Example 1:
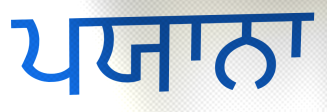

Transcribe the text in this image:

ਪਯਾਨਾ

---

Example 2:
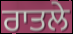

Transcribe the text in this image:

ਰਾਤਲੇ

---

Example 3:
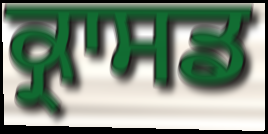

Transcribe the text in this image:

ਕ੍ਰਾਸਡ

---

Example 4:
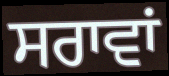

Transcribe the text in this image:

ਸਰਾਵਾਂ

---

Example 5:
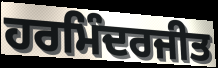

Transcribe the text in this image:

ਹਰਮਿੰਦਰਜੀਤ